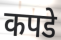
कपडे